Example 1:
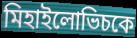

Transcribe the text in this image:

মিহাইলোভিচকে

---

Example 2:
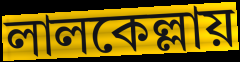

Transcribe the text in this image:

লালকেল্লায়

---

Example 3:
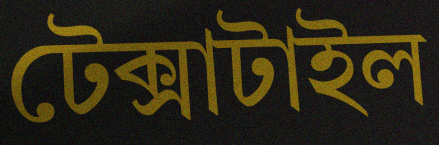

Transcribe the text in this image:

টেক্সাটাইল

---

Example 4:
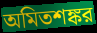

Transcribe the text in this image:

অমিতশঙ্কর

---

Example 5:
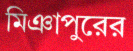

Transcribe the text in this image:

মিঞাপুরের